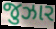
જુઝાર